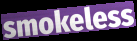
smokeless